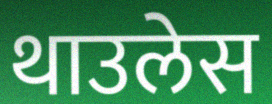
थाउलेस